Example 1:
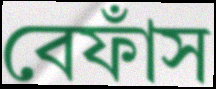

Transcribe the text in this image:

বেফাঁস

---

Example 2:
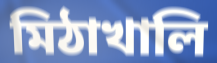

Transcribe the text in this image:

মিঠাখালি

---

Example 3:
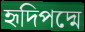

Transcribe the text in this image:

হৃদিপদ্মে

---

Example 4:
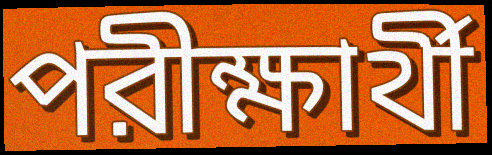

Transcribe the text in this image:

পরীক্ষার্থী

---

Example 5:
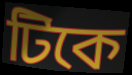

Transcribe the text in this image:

টিকে